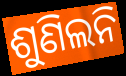
ଶୁଣିଲନି